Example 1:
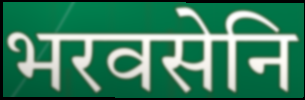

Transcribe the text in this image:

भरवसेनि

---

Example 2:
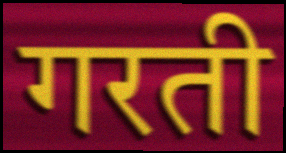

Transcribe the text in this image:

गरती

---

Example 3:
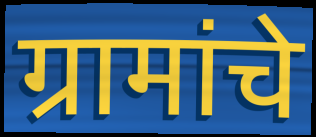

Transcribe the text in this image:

ग्रामांचे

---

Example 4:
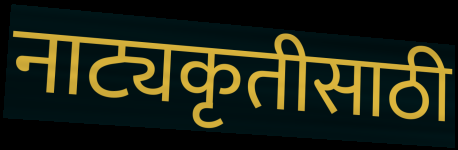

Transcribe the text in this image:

नाट्यकृतीसाठी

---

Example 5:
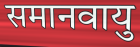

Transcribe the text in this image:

समानवायु